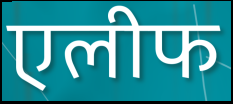
एलीफ